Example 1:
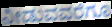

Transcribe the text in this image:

ನೀಡುವವರೆಗೂ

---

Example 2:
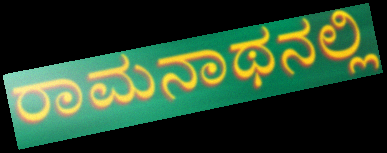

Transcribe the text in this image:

ರಾಮನಾಥನಲ್ಲಿ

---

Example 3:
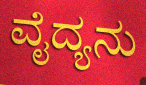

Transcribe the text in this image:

ವೈದ್ಯನು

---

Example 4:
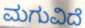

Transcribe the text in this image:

ಮಗುವಿದೆ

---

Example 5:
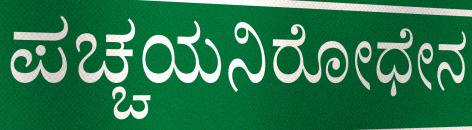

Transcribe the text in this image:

ಪಚ್ಚಯನಿರೋಧೇನ